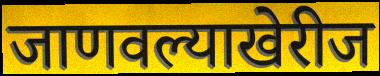
जाणवल्याखेरीज